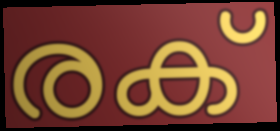
രക്